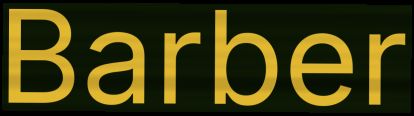
Barber